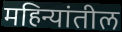
महिन्यांतील